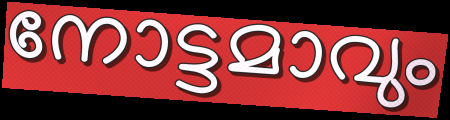
നോട്ടമാവും